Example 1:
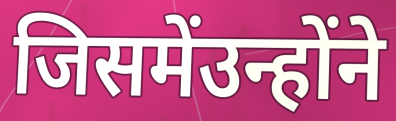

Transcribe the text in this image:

जिसमेंउन्होंने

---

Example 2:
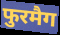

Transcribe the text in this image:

फुरमैग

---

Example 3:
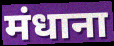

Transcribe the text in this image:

मंधाना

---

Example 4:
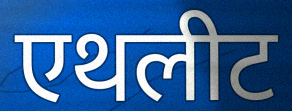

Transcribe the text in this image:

एथलीट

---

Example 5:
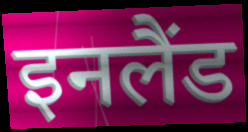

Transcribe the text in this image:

इनलैंड